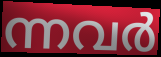
ന്നവർ